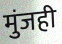
मुंजही